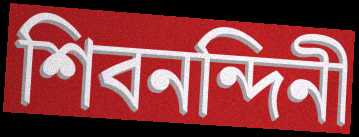
শিবনন্দিনী